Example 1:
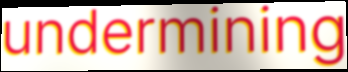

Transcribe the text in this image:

undermining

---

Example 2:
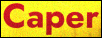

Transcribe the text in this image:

Caper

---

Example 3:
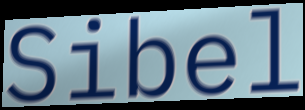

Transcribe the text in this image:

Sibel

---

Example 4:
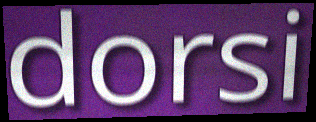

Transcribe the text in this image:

dorsi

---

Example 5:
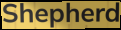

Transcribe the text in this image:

Shepherd